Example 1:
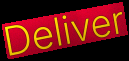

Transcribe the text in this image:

Deliver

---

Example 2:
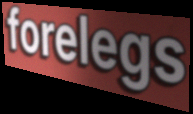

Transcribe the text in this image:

forelegs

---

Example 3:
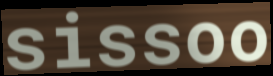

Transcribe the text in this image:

sissoo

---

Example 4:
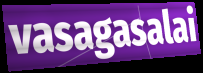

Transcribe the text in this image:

vasagasalai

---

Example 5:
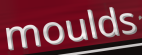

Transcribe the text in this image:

moulds